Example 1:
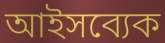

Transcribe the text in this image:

আইসব্যেক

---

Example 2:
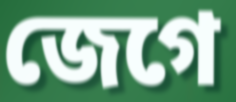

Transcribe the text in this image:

জেগে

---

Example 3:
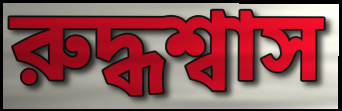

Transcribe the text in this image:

রুদ্ধশ্বাস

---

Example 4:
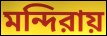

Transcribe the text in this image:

মন্দিরায়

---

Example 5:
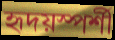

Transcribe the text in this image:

হৃদয়স্পর্শী